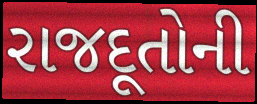
રાજદૂતોની